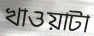
খাওয়াটা